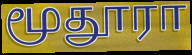
மூதூரா